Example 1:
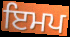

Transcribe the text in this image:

ਇਮਪ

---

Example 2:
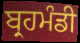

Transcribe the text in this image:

ਬ੍ਰਹਮੰਡੀ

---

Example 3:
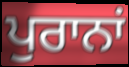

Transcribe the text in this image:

ਪੁਰਾਨਾਂ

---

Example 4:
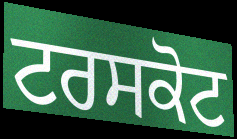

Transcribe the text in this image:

ਟਰਸਕੋਟ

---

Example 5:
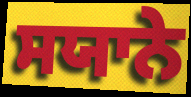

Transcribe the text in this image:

ਸਯਾਨੇ